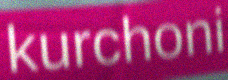
kurchoni